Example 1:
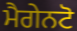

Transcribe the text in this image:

ਮੈਗੇਨਟੋ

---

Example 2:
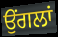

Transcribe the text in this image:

ਉੰਗਲਾਂ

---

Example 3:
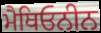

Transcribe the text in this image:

ਮੈਥਿਓਨੀਨ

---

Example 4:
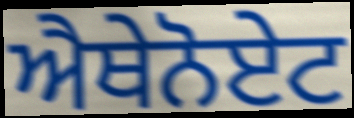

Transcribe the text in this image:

ਐਥੇਨੋਏਟ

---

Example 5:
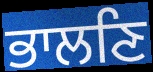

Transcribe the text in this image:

ਭਾਲਣਿ